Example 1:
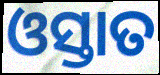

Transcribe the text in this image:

ଓସ୍ତାତ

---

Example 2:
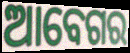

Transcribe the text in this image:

ଆବେଗର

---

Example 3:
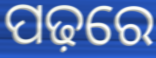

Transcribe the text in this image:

ପଢ଼ରେ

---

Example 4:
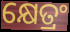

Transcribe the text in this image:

କ୍ଷେତ୍ରଂ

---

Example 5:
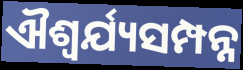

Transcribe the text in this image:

ଐଶ୍ୱର୍ଯ୍ୟସମ୍ପନ୍ନ